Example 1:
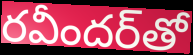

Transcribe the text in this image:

రవీందర్‌తో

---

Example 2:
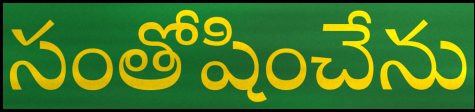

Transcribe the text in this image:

సంతోషించేను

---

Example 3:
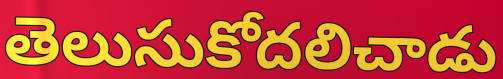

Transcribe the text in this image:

తెలుసుకోదలిచాడు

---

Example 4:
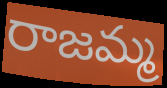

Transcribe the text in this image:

రాజమ్మ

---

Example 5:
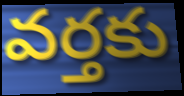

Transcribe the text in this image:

వర్తకు